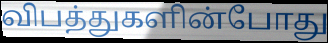
விபத்துகளின்போது